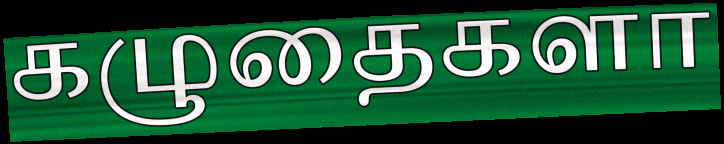
கழுதைகளா